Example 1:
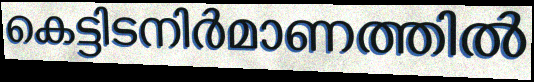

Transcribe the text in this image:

കെട്ടിടനിർമാണത്തിൽ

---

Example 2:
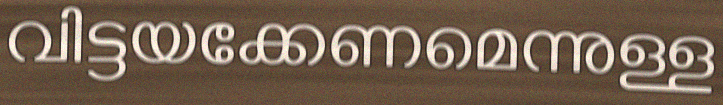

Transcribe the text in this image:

വിട്ടയക്കേണമെന്നുള്ള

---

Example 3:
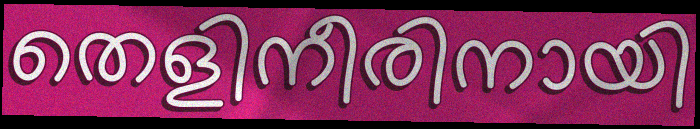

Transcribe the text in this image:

തെളിനീരിനായി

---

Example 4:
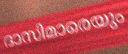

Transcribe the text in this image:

ദാസിമാരെയും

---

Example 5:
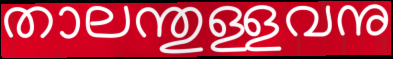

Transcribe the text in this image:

താലന്തുള്ളവനു